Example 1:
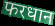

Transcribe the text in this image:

फरधान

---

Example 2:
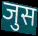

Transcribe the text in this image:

जुस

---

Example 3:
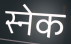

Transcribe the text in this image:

स्‍नेक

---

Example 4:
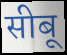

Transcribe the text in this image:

सीबू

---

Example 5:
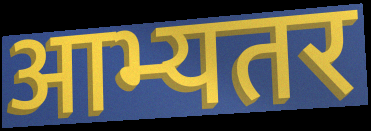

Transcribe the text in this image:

आभ्यतर